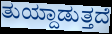
ತುಯ್ದಾಡುತ್ತದೆ